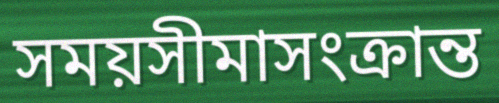
সময়সীমাসংক্রান্ত